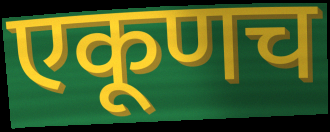
एकूणच